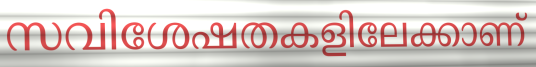
സവിശേഷതകളിലേക്കാണ്